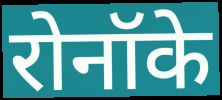
रोनॉके